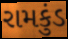
રામકુંડ